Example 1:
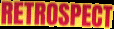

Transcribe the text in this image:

RETROSPECT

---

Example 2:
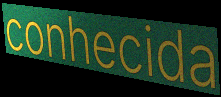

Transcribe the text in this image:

conhecida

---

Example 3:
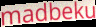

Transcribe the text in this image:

madbeku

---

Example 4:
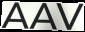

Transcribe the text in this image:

AAV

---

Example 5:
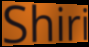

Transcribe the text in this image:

Shiri